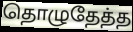
தொழுதேத்த